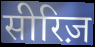
सीरिज़